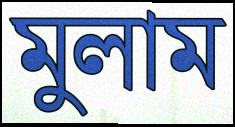
মুলাম